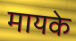
मायके